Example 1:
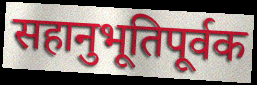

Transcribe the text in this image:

सहानुभूतिपूर्वक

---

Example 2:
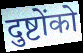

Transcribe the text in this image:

दुष्टोंको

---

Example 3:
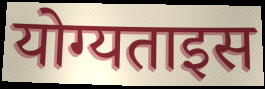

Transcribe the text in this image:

योग्यताइस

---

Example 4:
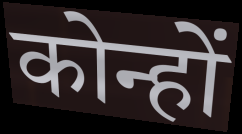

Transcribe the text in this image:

कोन्हों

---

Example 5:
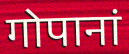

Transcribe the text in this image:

गोपानां